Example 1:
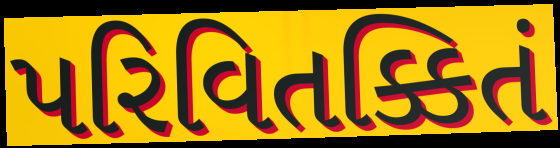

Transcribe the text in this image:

પરિવિતક્કિતં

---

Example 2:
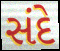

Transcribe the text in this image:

સંદે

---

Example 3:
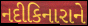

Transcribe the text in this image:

નદીકિનારાને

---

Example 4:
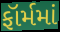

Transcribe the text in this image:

ફૉર્મમાં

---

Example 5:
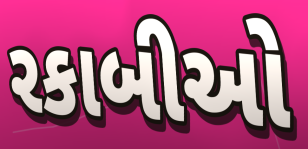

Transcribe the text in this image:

રકાબીઓ